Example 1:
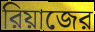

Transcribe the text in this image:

রিয়াজের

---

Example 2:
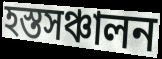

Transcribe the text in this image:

হস্তসঞ্চালন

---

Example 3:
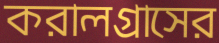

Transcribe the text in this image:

করালগ্রাসের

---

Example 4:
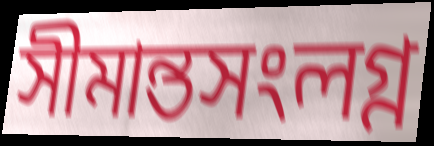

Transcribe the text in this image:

সীমান্তসংলগ্ন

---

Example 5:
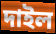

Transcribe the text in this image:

দাইল